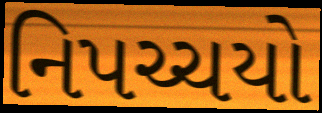
નિપચ્ચયો